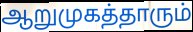
ஆறுமுகத்தாரும்